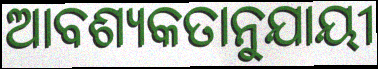
ଆବଶ୍ୟକତାନୁଯାୟୀ